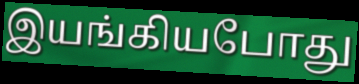
இயங்கியபோது